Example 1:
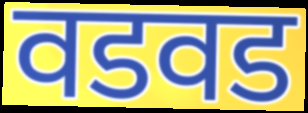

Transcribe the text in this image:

वडवड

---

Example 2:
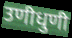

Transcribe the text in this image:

उणीधुणी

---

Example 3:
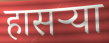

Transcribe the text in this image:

हासऱ्या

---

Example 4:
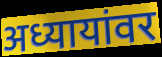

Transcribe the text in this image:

अध्यायांवर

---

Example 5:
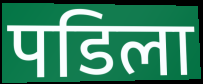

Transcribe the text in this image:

पडिला